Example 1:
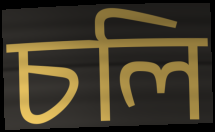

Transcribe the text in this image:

চলি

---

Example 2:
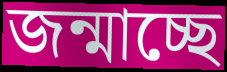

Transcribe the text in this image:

জন্মাচ্ছে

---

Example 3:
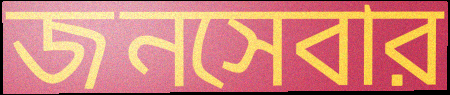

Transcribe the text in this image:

জনসেবার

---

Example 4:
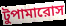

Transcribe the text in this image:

টুপামারোস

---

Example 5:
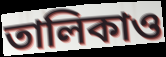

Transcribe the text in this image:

তালিকাও